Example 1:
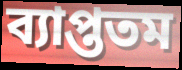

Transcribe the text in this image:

ব্যাপ্ততম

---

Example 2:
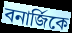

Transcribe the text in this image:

বনার্জিকে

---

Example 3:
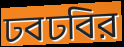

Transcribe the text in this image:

ঢবঢবির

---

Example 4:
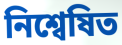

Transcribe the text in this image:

নিশ্বেষিত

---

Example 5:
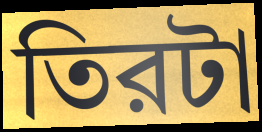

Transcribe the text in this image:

তিরটা